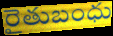
రైతుబంధు